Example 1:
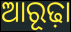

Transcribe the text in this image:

ଆରୂଢ଼ା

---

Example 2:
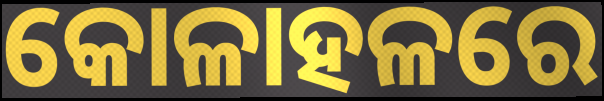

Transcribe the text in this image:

କୋଳାହଳରେ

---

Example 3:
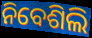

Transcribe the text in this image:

ନିବେଶିଲି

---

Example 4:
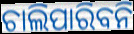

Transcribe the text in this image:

ଚାଲିପାରିବନି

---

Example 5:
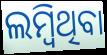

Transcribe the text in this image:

ଲମ୍ବିଥିବା